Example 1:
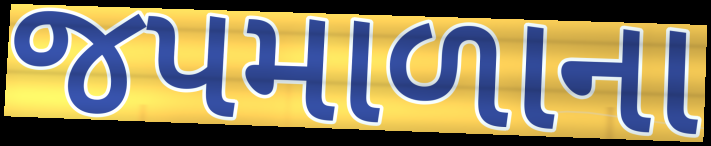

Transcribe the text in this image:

જપમાળાના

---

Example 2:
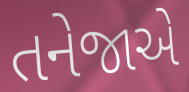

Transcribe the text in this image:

તનેજાએ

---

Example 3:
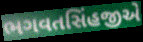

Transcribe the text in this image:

ભગવતસિંહજીએ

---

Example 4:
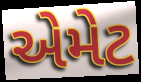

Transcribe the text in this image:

એમેટ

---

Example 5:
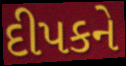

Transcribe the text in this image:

દીપકને